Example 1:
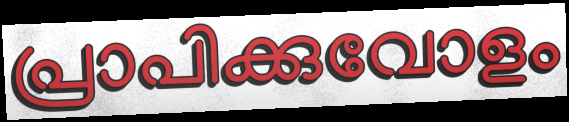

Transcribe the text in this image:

പ്രാപിക്കുവോളം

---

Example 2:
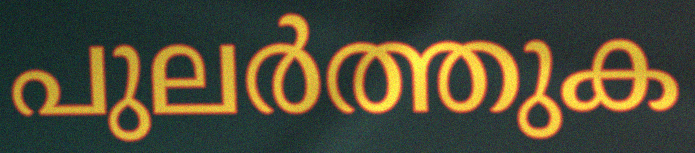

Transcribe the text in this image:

പുലർത്തുക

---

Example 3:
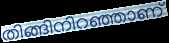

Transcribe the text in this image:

തിങ്ങിനിറഞ്ഞാണ്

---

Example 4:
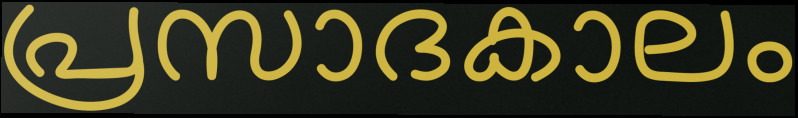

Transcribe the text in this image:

പ്രസാദകാലം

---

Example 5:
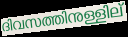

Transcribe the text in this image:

ദിവസത്തിനുള്ളില്